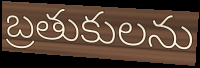
బ్రతుకులను